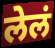
लेलं